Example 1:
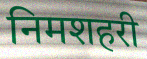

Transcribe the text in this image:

निमशहरी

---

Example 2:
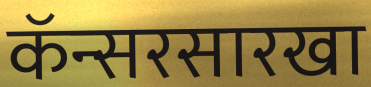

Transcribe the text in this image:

कॅन्सरसारखा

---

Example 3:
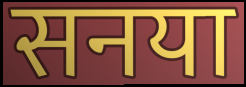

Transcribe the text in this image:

सनया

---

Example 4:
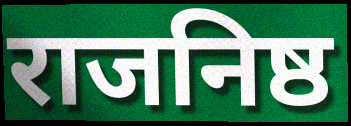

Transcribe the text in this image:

राजनिष्ठ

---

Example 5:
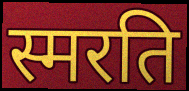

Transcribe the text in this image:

स्मरति